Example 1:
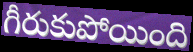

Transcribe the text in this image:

గీరుకుపోయింది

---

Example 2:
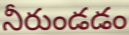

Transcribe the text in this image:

నీరుండడం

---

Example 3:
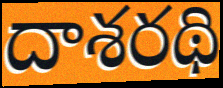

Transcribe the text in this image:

దాశరథి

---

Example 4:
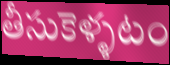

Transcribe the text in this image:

తీసుకెళ్ళటం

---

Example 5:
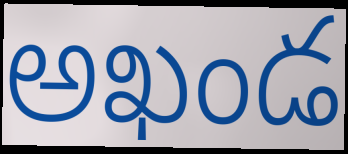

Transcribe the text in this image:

అఖండ